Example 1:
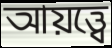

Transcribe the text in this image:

আয়ত্ত্বে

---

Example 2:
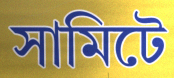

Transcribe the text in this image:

সামিটে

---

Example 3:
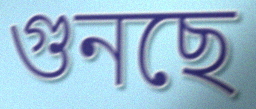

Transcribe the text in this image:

গুনছে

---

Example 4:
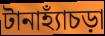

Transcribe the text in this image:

টানাহ্যাঁচড়া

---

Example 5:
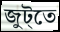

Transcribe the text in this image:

জুট্তে